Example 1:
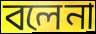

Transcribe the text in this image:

বলেনা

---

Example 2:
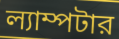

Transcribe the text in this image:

ল্যাম্পটার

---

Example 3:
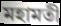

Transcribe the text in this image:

মহামতী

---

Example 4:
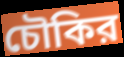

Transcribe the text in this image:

চৌকির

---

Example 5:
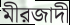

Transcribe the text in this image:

মীরজাদী